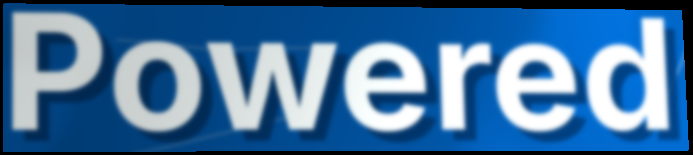
Powered